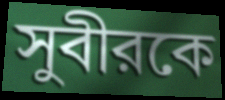
সুবীরকে